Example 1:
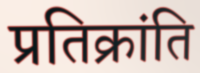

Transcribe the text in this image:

प्रतिक्रांति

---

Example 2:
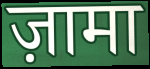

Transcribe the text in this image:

ज़ामा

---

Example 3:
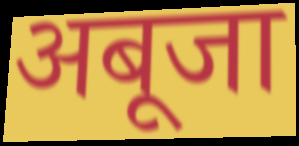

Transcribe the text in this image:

अबूजा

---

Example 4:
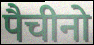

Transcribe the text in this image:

पैचीनो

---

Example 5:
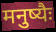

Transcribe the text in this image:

मनुष्यैः